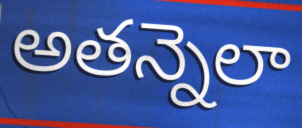
అతన్నెలా